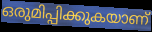
ഒരുമിപ്പിക്കുകയാണ്